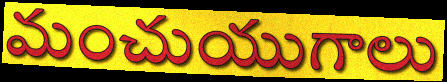
మంచుయుగాలు